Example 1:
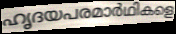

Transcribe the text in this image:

ഹൃദയപരമാർഥികളെ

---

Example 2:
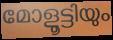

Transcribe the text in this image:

മോളൂട്ടിയും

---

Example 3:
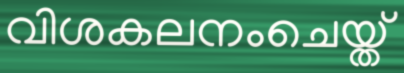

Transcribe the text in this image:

വിശകലനംചെയ്ത്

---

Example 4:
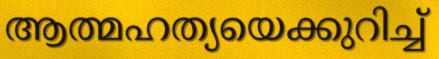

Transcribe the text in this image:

ആത്മഹത്യയെക്കുറിച്ച്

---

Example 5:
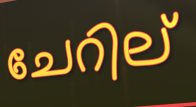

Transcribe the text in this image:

ചേറില്